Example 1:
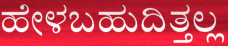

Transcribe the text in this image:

ಹೇಳಬಹುದಿತ್ತಲ್ಲ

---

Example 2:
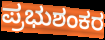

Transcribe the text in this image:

ಪ್ರಭುಶಂಕರ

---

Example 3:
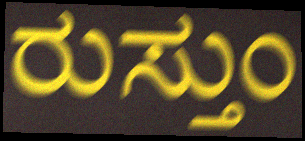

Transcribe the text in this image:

ರುಸ್ತುಂ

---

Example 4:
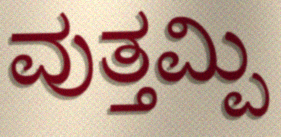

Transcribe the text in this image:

ವುತ್ತಮ್ಪಿ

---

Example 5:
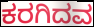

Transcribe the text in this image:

ಕರಗಿದವ